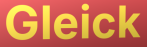
Gleick